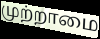
முற்றாமை